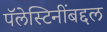
पॅलेस्टिनींबद्दल